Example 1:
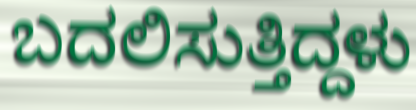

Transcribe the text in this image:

ಬದಲಿಸುತ್ತಿದ್ದಳು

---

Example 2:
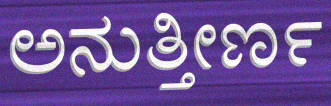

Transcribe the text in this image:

ಅನುತ್ತೀರ್ಣ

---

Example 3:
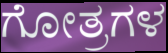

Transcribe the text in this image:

ಗೋತ್ರಗಳ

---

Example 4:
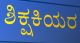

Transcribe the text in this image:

ಶಿಕ್ಷಕಿಯರ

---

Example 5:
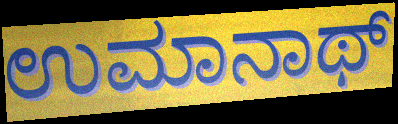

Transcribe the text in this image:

ಉಮಾನಾಥ್